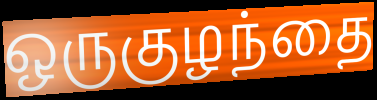
ஒருகுழந்தை